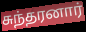
சுந்தரனார்